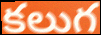
కలుగ